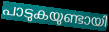
പാടുകയുണ്ടായി